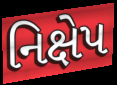
નિક્ષેપ